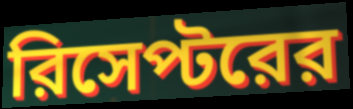
রিসেপ্টরের